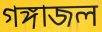
গঙ্গাজল